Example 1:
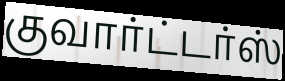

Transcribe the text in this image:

குவார்ட்டர்ஸ்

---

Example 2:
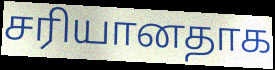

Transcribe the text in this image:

சரியானதாக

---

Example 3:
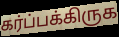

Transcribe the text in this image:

கர்ப்பக்கிருக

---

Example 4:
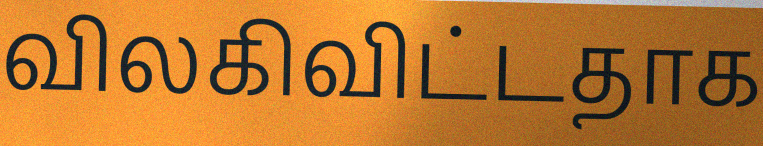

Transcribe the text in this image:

விலகிவிட்டதாக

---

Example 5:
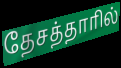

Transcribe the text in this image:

தேசத்தாரில்